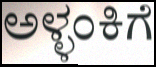
ಅಳ್ಳಂಕಿಗೆ